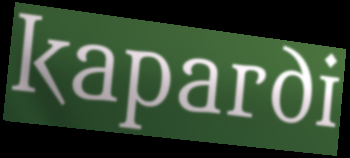
kapardi